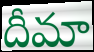
దీమా